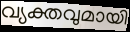
വ്യക്തവുമായി